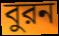
বুরন